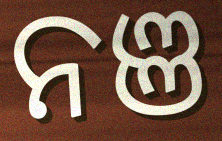
ନଞ